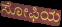
ಸೋಫಿಯ